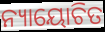
ନ୍ୟାୟୋଚିତ